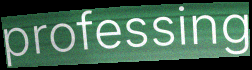
professing